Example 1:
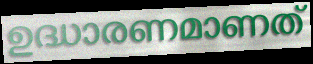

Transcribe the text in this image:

ഉദ്ധാരണമാണത്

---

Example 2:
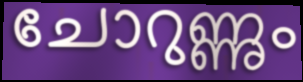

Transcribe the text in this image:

ചോറുണ്ണും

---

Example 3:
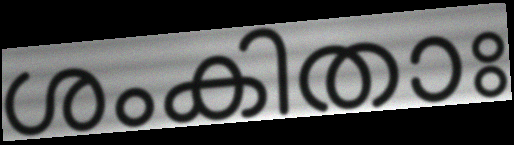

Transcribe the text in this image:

ശംകിതാഃ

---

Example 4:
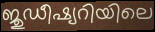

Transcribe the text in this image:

ജുഡീഷ്യറിയിലെ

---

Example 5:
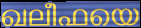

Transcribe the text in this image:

ഖലീഫയെ